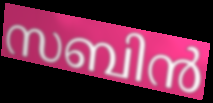
സബിൻ